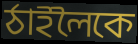
ঠাইলৈকে